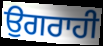
ਉਗਰਾਹੀ